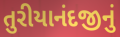
તુરીયાનંદજીનું